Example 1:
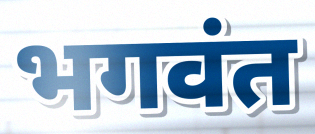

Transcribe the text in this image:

भगवंत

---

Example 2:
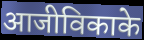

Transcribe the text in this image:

आजीविकाके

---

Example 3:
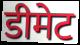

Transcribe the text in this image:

डीमेट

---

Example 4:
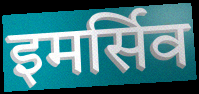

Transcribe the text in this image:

इमर्सिव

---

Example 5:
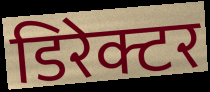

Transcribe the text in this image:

डिरेक्टर